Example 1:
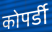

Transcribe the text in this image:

कोपर्डी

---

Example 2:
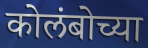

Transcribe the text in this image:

कोलंबोच्या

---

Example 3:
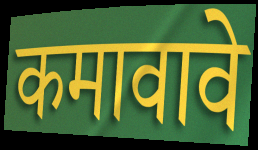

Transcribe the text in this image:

कमावावे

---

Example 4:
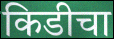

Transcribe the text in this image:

किडीचा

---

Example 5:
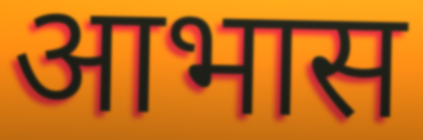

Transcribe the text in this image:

आभास